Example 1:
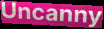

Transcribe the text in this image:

Uncanny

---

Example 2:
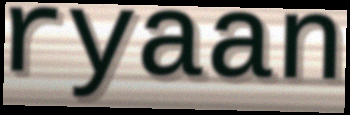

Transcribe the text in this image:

ryaan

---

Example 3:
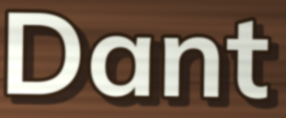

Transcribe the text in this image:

Dant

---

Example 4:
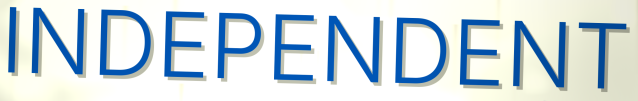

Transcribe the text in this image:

INDEPENDENT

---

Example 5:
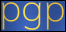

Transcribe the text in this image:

pgp